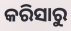
କରିସାରୁ